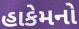
હાકેમનો